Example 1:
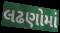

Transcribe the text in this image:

લઢણોમાં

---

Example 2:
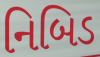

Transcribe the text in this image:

નિબિડ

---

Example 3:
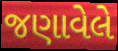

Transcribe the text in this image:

જણાવેલે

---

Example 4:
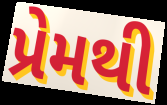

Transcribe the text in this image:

પ્રેમથી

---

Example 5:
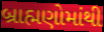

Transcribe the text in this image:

બ્રાહ્મણોમાંથી